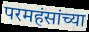
परमहंसांच्या